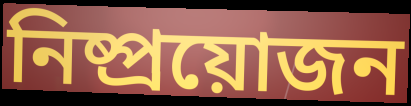
নিষ্প্ৰয়োজন